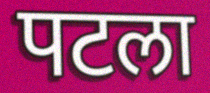
पटला